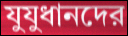
যুযুধানদের